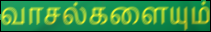
வாசல்களையும்